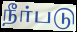
நீர்படு